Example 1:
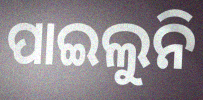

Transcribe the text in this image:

ପାଇଲୁନି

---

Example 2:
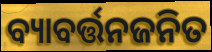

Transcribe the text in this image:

ବ୍ୟାବର୍ତ୍ତନଜନିତ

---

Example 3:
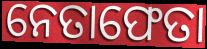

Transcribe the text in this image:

ନେତାଫେତା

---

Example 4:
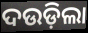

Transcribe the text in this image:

ଦଉଡ଼ିଲା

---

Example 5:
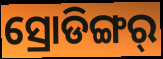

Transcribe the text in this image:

ସ୍ରୋଡିଙ୍ଗର୍